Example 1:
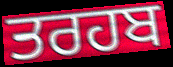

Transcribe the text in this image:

ਤਰਹਬ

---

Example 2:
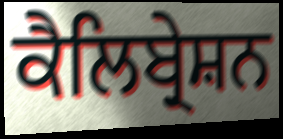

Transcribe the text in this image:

ਕੈਲਿਬ੍ਰੇਸ਼ਨ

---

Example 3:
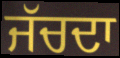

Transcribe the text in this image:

ਜੱਚਦਾ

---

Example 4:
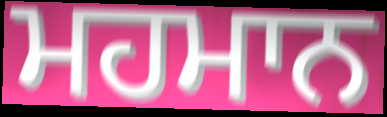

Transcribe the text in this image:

ਮਹਮਾਨ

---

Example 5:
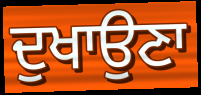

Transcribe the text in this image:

ਦੁਖਾਉਣਾ